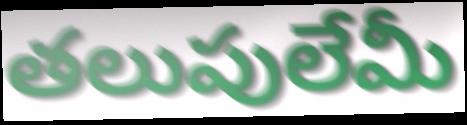
తలుపులేమీ